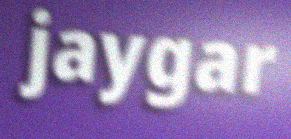
jaygar